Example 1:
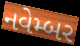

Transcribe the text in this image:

નવેમ્બર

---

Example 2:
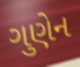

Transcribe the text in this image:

ગુણેન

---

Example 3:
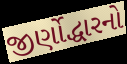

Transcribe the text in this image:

જીર્ણોદ્ધારનો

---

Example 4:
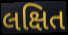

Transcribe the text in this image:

લક્ષિત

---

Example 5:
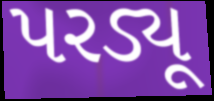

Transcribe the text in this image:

પરડ્યૂ